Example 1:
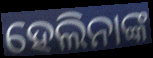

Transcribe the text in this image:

ହେଲିନାଙ୍କ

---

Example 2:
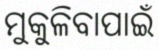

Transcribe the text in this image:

ମୁକୁଳିବାପାଇଁ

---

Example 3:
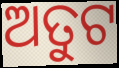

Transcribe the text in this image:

ଅତୁଟ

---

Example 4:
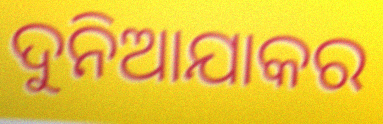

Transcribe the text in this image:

ଦୁନିଆଯାକର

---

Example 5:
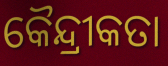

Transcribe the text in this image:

କୈନ୍ଦ୍ରୀକତା